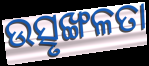
ଉତ୍ସୃଙ୍ଖଳତା